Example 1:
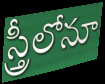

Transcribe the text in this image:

స్త్రీలోనూ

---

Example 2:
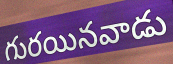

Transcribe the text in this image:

గురయినవాడు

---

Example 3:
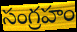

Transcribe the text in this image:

సంగ్రహం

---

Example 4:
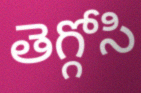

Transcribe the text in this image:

తెగ్గోసి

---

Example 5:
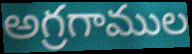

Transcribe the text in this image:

అగ్రగాముల